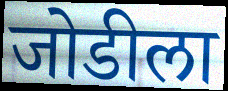
जोडीला